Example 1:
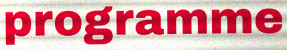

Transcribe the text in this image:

programme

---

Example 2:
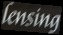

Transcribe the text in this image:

lensing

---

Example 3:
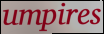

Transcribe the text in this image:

umpires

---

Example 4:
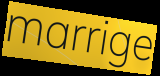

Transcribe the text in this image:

marrige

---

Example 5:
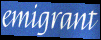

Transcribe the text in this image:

emigrant